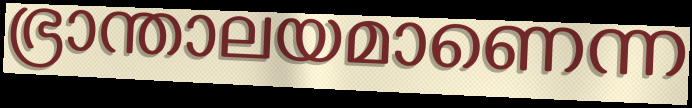
ഭ്രാന്താലയമാണെന്ന